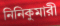
নিনিকুমারী